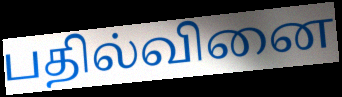
பதில்வினை